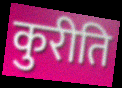
कुरीति